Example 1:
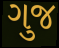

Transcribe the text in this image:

ગુજ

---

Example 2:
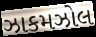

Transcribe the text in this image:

ઝાકમઝોલ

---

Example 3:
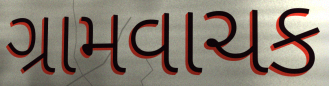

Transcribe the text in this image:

ગ્રામવાચક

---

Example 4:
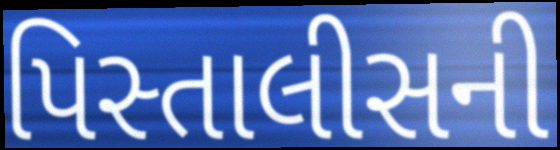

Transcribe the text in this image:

પિસ્તાલીસની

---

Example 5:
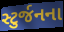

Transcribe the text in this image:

સ્ટુર્જનના